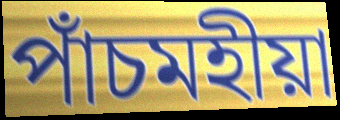
পাঁচমহীয়া